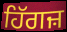
ਹਿੱਗਜ਼